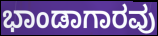
ಭಾಂಡಾಗಾರವು